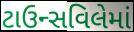
ટાઉન્સવિલેમાં